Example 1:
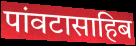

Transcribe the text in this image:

पांवटासाहिब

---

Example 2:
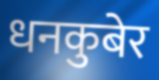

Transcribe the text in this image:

धनकुबेर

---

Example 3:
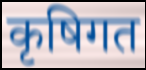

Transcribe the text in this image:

कृषिगत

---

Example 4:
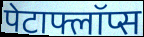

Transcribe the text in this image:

पेटाफ्लॉप्स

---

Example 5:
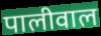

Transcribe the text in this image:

पालीवाल